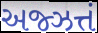
અજ્ઝત્તં